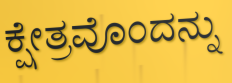
ಕ್ಷೇತ್ರವೊಂದನ್ನು